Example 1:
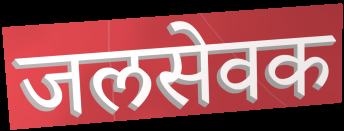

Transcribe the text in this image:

जलसेवक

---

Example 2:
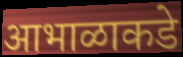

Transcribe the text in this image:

आभाळाकडे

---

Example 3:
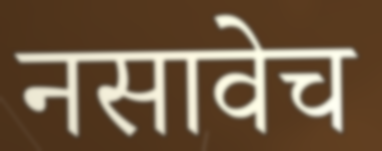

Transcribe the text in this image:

नसावेच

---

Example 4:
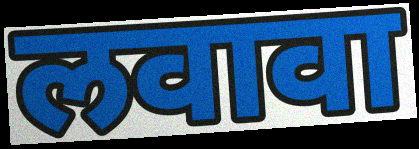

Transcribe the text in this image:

लवावा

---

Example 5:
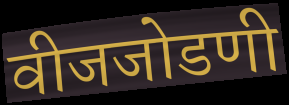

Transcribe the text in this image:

वीजजोडणी